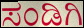
ಸಂಡಿಗಿ